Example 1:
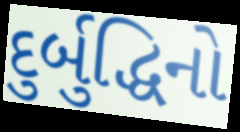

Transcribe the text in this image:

દુર્બુદ્ધિનો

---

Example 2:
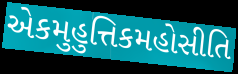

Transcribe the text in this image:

એકમુહુત્તિકમહોસીતિ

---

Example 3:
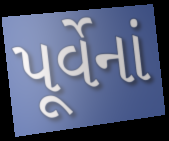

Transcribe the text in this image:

પૂર્વેનાં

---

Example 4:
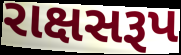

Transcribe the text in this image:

રાક્ષસરૂપ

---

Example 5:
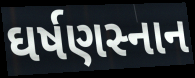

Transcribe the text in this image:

ઘર્ષણસ્નાન